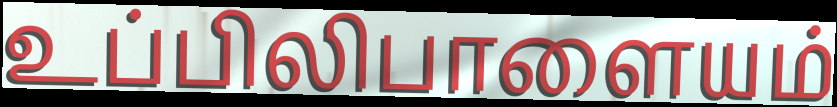
உப்பிலிபாளையம்